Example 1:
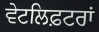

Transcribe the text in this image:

ਵੇਟਲਿਫ਼ਟਰਾਂ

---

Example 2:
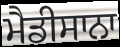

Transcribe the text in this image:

ਮੈਡੀਸਾਨਾ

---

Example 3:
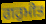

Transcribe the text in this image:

ਗਰੁਮੀਤ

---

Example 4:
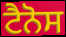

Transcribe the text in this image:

ਟੈਨੋਸ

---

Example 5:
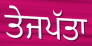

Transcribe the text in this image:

ਤੇਜਪੱਤਾ